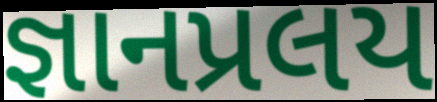
જ્ઞાનપ્રલય